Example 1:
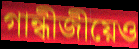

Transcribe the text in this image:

গান্ধীজীয়েও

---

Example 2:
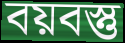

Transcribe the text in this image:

বয়বস্তু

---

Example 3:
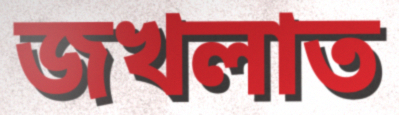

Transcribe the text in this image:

জখলাত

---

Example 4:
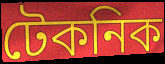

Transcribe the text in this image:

টেকনিক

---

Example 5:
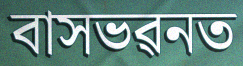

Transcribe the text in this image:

বাসভৱনত